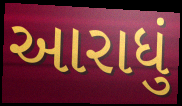
આરાધું